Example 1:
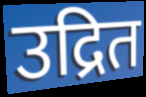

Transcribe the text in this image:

उद्रित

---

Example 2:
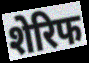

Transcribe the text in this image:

शेरिफ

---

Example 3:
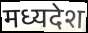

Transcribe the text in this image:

मध्यदेश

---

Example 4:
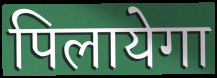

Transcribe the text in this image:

पिलायेगा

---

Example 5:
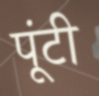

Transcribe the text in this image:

पूंटी